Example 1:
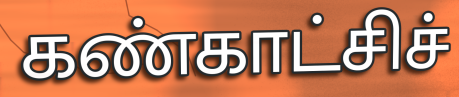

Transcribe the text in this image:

கண்காட்சிச்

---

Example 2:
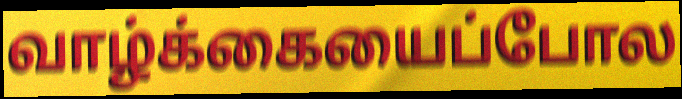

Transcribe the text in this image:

வாழ்க்கையைப்போல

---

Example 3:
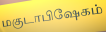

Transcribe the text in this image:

மகுடாபிஷேகம்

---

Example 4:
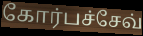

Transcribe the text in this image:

கோர்பச்சேவ்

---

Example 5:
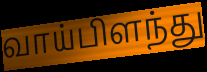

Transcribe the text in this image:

வாய்பிளந்து